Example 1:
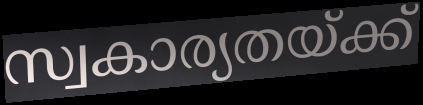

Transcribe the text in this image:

സ്വകാര്യതയ്ക്ക്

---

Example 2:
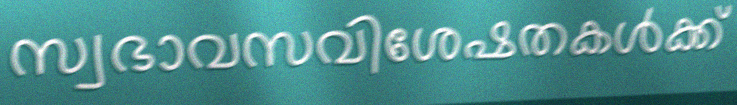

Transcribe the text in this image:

സ്വഭാവസവിശേഷതകൾക്ക്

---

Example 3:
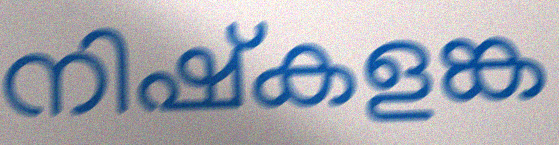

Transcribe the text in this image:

നിഷ്കളങ്ക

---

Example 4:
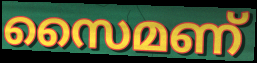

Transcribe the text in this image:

സൈമണ്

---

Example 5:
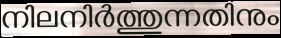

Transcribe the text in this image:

നിലനിർത്തുന്നതിനും